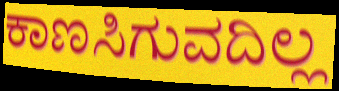
ಕಾಣಸಿಗುವದಿಲ್ಲ